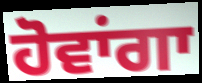
ਹੋਵਾਂਗਾ